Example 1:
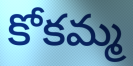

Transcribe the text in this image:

కోకమ్మ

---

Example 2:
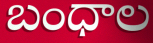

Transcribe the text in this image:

బంధాల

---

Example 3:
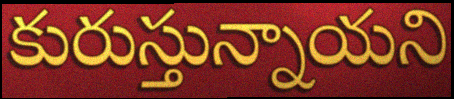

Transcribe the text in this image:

కురుస్తున్నాయని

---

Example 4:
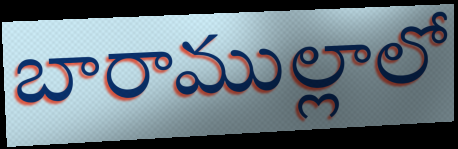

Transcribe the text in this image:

బారాముల్లాలో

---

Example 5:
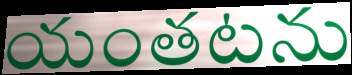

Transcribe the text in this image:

యంతటను